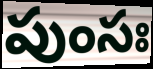
పుంసః